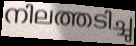
നിലത്തടിച്ചു